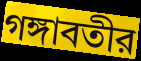
গঙ্গাবতীর